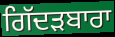
ਗਿੱਦੜਬਾਰਾ